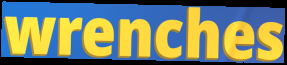
wrenches